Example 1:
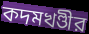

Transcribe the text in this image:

কদমখণ্ডীর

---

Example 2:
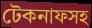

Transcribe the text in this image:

টেকনাফসহ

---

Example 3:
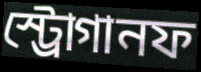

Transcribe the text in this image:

স্ট্রোগানফ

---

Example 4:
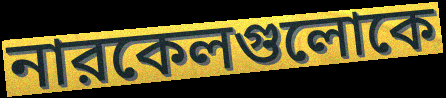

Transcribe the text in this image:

নারকেলগুলোকে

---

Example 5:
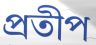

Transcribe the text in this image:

প্রতীপ